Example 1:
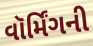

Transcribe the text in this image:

વૉર્મિંગની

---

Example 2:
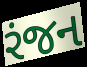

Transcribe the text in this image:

રંજન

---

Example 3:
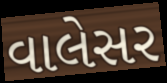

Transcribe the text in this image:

વાલેસર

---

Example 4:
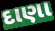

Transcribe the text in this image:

દાણા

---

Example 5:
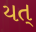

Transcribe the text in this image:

યત્